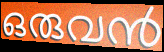
ഒരുവൻ